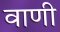
वाणी